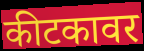
कीटकावर